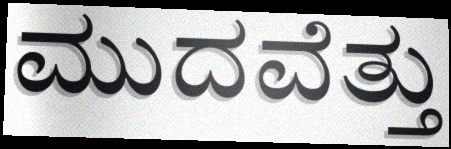
ಮುದವೆತ್ತು